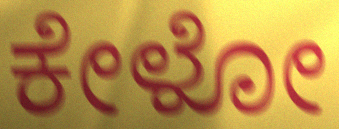
ಕೇಳೋ